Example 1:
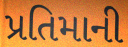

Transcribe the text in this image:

પ્રતિમાની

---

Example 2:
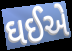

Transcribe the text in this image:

ઘઈએ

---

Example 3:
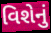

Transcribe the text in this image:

વિશેનું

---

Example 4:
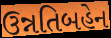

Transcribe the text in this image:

ઉન્નતિબહેન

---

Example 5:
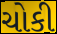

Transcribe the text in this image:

ચોકી